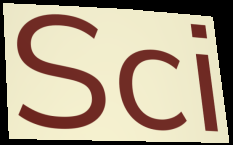
Sci